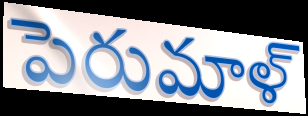
పెరుమాళ్